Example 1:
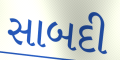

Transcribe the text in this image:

સાબદી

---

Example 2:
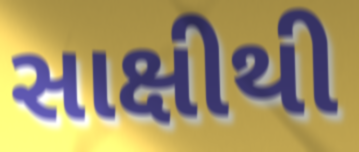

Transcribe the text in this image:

સાક્ષીથી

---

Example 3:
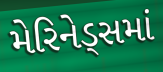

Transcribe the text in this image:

મેરિનેડ્સમાં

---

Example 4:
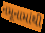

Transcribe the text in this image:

નમૂનામાંથી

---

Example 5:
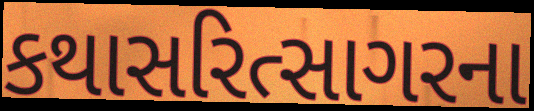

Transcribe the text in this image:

કથાસરિત્સાગરના